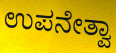
ಉಪನೇತ್ವಾ